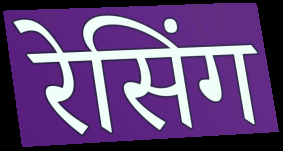
रेसिंग